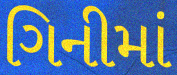
ગિનીમાં